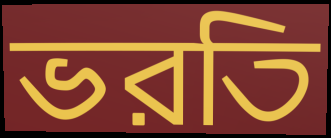
ভরতি